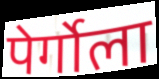
पेर्गोला